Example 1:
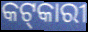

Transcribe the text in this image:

କଟ୍‌କାରୀ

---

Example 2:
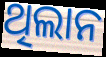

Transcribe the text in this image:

ଥିଲାନ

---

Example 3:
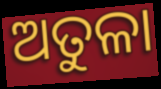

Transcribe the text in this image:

ଅତୁଳା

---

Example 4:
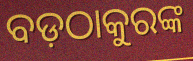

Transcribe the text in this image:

ବଡ଼ଠାକୁରଙ୍କ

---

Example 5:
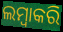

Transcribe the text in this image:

ଲମ୍ବାକରି